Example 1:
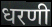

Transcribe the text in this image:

धरणी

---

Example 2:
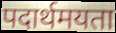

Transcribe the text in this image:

पदार्थमयता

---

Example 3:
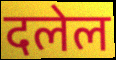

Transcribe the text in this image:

दलेल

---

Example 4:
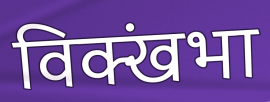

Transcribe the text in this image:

विक्खंभा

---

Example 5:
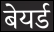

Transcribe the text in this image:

बेयर्ड